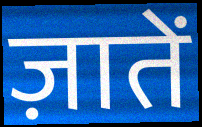
ज़ातें